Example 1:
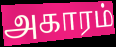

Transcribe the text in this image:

அகாரம்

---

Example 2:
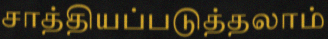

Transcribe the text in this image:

சாத்தியப்படுத்தலாம்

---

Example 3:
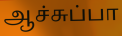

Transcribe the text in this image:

ஆச்சுப்பா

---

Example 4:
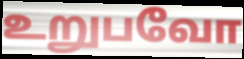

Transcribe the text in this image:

உறுபவோ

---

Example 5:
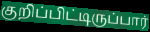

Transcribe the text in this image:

குறிப்பிட்டிருப்பார்